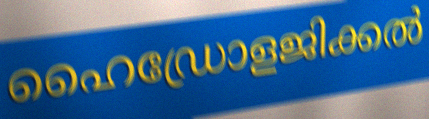
ഹൈഡ്രോളജിക്കൽ